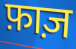
फ़ाज़